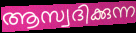
ആസ്വദിക്കുന്ന